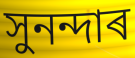
সুনন্দাৰ